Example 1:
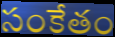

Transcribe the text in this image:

సంకేతం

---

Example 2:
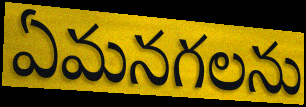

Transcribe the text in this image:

ఏమనగలను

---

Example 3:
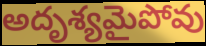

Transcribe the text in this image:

అదృశ్యమైపోవు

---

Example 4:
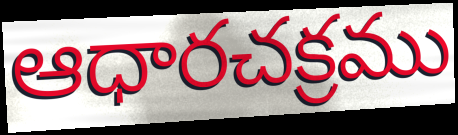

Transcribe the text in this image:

ఆధారచక్రము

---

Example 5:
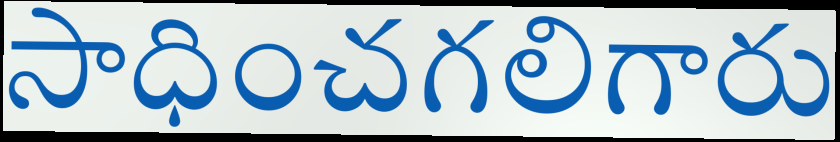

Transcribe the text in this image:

సాధించగలిగారు